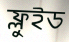
ফ্লুইড